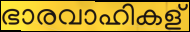
ഭാരവാഹികള്